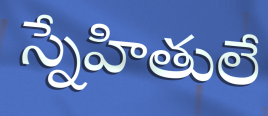
స్నేహితులే